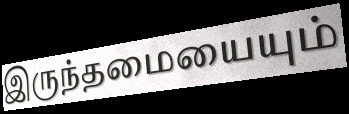
இருந்தமையையும்